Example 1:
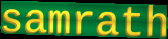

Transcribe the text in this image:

samrath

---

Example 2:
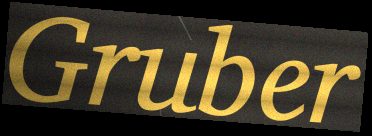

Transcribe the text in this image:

Gruber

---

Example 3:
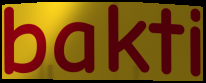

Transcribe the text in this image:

bakti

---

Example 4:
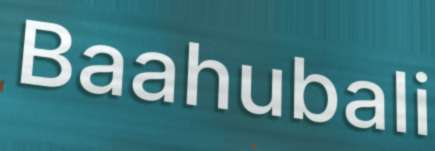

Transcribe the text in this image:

Baahubali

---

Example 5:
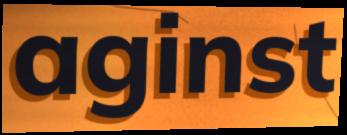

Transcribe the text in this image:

aginst